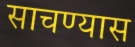
साचण्यास